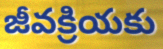
జీవక్రియకు